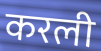
करली